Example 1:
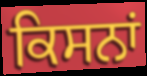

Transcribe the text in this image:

ਕਿਸਨਾਂ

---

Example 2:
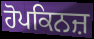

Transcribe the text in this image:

ਹੋਪਕਿਨਜ਼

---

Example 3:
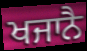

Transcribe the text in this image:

ਖਜਾਨੈ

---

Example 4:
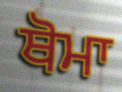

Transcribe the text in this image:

ਥੋਮਾ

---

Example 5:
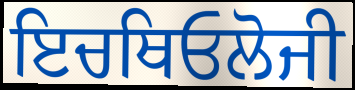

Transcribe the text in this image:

ਇਚਥਿਓਲੋਜੀ